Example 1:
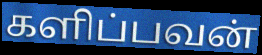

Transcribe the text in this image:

களிப்பவன்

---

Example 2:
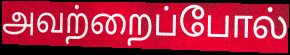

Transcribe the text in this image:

அவற்றைப்போல்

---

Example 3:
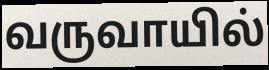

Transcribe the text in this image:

வருவாயில்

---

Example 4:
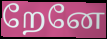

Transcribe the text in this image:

றேனே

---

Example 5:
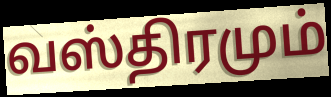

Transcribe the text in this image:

வஸ்திரமும்